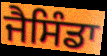
ਜੈਸਿੰਡਾ